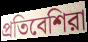
প্রতিবেশিরা